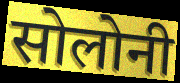
सोलोनी